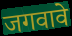
जगवावे